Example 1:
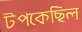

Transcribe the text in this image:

টপকেছিল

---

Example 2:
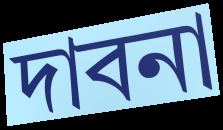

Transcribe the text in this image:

দাবনা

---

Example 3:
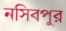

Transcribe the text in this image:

নসিবপুর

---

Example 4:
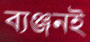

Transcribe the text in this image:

ব্যঞ্জনই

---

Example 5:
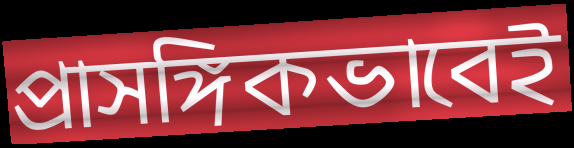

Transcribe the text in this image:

প্রাসঙ্গিকভাবেই